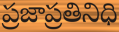
ప్రజాప్రతినిధి